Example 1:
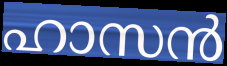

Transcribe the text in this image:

ഹാസൻ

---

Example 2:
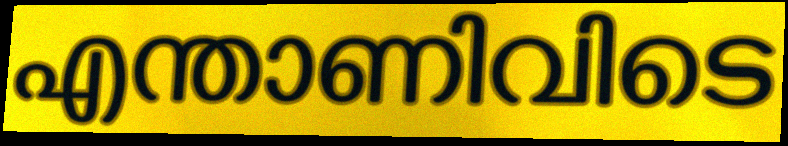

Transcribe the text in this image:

എന്താണിവിടെ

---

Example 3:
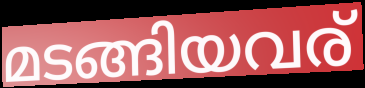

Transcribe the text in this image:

മടങ്ങിയവര്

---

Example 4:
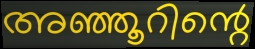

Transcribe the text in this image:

അഞ്ഞൂറിന്റെ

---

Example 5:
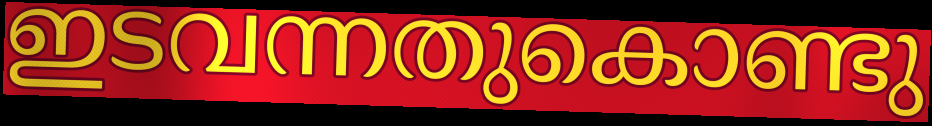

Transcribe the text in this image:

ഇടവന്നതുകൊണ്ടു